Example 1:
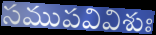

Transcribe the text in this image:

సముపవివిశుః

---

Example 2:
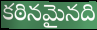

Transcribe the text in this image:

కఠినమైనది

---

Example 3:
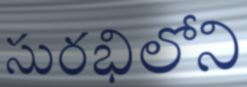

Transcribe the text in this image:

సురభిలోని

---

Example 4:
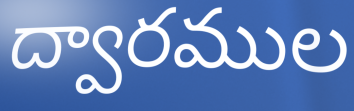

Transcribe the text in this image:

ద్వారముల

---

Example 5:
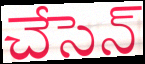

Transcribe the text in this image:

చేసెన్